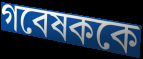
গবেষককে